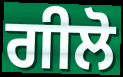
ਗੀਲੋ